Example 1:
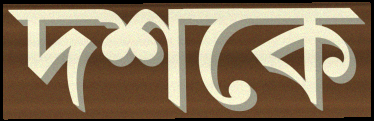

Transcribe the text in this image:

দশকে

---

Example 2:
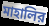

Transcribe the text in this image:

মাহালির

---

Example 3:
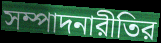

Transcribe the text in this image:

সম্পাদনারীতির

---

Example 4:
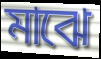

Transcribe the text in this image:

মাঝে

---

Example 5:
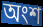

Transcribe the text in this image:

অংশ